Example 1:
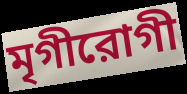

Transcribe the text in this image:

মৃগীরোগী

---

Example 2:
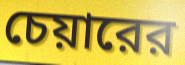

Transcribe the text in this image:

চেয়ারের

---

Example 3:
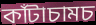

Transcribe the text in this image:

কাঁটাচামচ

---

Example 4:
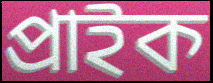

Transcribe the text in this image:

প্রাইক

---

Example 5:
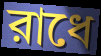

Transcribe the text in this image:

রাধে